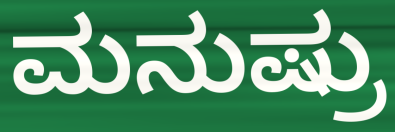
ಮನುಷ್ರು